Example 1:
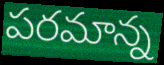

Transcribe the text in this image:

పరమాన్న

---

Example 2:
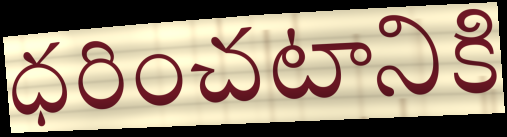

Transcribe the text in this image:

ధరించటానికి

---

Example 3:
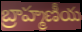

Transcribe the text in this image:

బ్రాహ్మణీయ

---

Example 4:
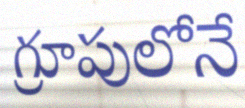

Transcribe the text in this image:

గ్రూపులోనే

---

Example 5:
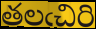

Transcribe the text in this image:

తలఁచిరి